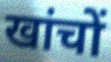
खांचों